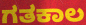
ಗತಕಾಲ